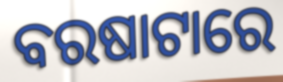
ବରଷାଟାରେ